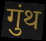
गुंथ